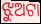
ଝୁଅଟା